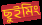
ছুইমিং